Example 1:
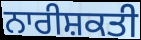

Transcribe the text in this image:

ਨਾਰੀਸ਼ਕਤੀ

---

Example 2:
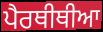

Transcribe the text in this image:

ਪੈਰਥੀਥੀਆ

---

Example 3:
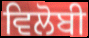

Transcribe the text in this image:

ਵਿਲੋਬੀ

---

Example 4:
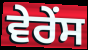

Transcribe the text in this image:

ਵੇਰੇਂਸ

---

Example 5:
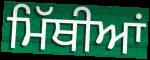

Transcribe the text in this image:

ਮਿੱਥੀਆਂ